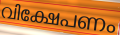
വിക്ഷേപണം